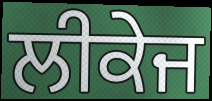
ਲੀਕੇਜ